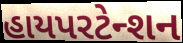
હાયપરટેન્શન